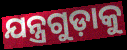
ଯନ୍ତ୍ରଗୁଡ଼ାକୁ